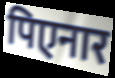
पिएनार